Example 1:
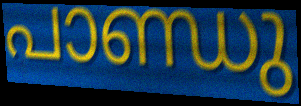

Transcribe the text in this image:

പാണ്ഡു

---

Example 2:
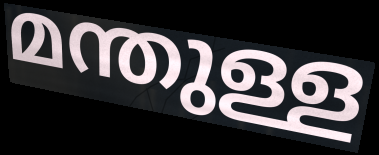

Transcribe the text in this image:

മന്തുള്ള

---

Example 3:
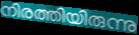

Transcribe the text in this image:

നിരത്തിയിരുന്നു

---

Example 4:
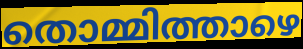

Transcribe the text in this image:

തൊമ്മിത്താഴെ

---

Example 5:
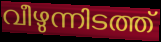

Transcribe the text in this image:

വീഴുന്നിടത്ത്